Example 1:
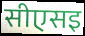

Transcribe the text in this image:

सीएसइ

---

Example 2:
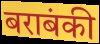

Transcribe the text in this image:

बराबंकी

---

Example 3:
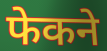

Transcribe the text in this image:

फेकने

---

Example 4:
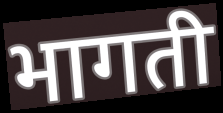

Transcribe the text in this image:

भागती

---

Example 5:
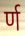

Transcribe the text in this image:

र्ण